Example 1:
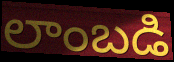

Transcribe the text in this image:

లాంబడి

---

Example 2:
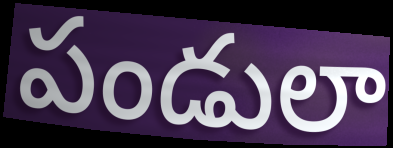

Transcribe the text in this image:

పండులా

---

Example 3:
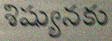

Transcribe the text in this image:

శిష్యునకు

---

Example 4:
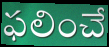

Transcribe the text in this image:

ఫలించే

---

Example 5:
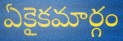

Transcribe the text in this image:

ఏకైకమార్గం